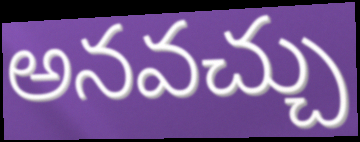
అనవచ్చు